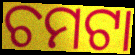
ଚମଟା